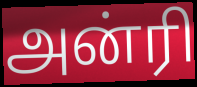
அன்ரி